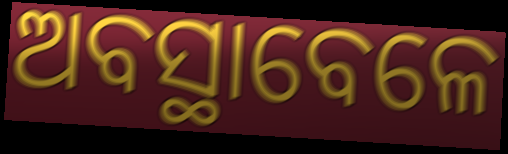
ଅବସ୍ଥାବେଳେ